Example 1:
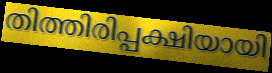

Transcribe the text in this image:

തിത്തിരിപ്പക്ഷിയായി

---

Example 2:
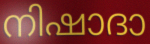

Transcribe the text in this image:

നിഷാദാ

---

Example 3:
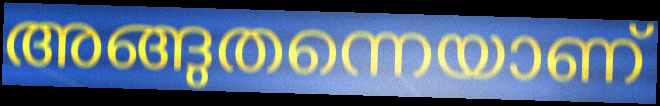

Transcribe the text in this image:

അങ്ങുതന്നെയാണ്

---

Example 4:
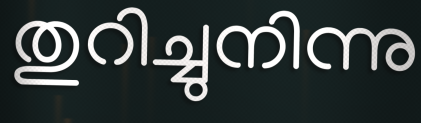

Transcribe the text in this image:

തുറിച്ചുനിന്നു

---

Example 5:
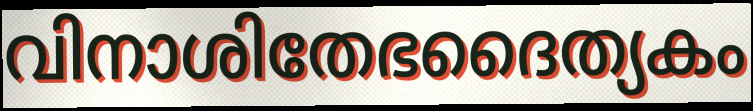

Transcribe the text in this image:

വിനാശിതേഭദൈത്യകം